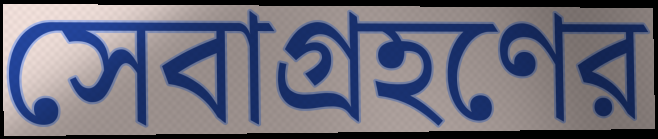
সেবাগ্রহণের